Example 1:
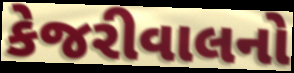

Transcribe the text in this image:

કેજરીવાલનો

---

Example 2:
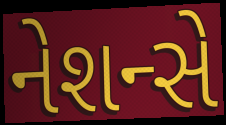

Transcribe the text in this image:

નેશન્સે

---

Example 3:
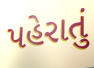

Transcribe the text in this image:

પહેરાતું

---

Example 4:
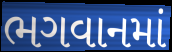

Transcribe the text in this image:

ભગવાનમાં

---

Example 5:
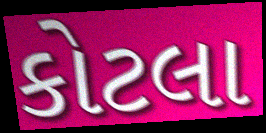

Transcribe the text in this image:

કોટલા